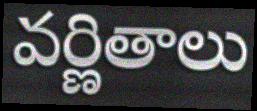
వర్ణితాలు